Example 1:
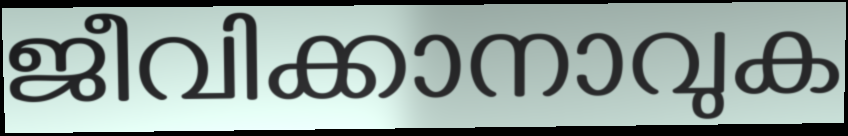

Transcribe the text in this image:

ജീവിക്കാനാവുക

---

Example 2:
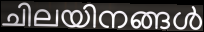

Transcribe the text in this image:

ചിലയിനങ്ങൾ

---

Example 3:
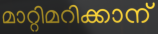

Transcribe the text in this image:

മാറ്റിമറിക്കാന്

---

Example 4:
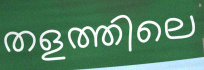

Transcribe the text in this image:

തളത്തിലെ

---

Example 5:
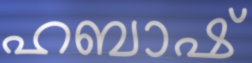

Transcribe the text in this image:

ഹബാഷ്